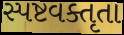
સ્પષ્ટવક્તૃતા